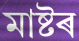
মাষ্টৰ